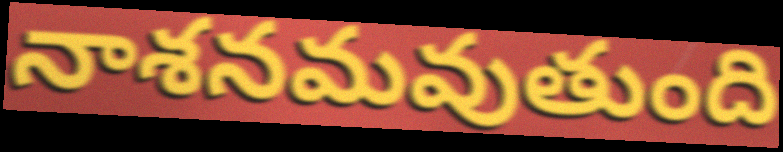
నాశనమవుతుంది